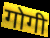
गोगी